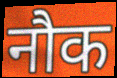
नौक